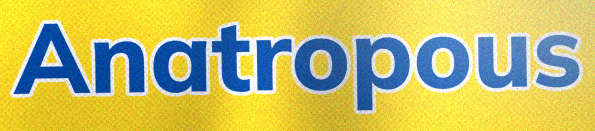
Anatropous